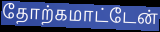
தோற்கமாட்டேன்